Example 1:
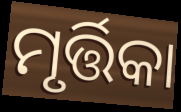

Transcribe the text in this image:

ମୃର୍ତ୍ତିକା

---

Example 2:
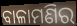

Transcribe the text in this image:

ବାଳାମଣିର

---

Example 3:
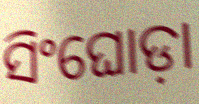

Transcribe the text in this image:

ସିଂଘୋଡ଼ା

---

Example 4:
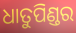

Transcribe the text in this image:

ଧାତୁପିଣ୍ଡର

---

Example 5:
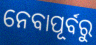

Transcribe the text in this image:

ନେବାପୂର୍ବରୁ